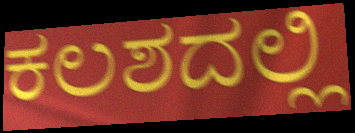
ಕಲಶದಲ್ಲಿ